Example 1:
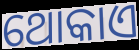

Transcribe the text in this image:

ଥୋକାଏ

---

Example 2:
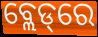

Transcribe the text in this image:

ବ୍ଲେଡ୍‌ରେ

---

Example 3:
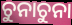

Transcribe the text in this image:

ଚୁନାଚୁନା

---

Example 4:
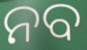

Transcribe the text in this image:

ନବ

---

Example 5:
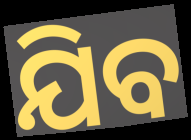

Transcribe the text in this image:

ଯିବ